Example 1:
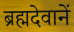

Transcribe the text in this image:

ब्रह्मदेवानें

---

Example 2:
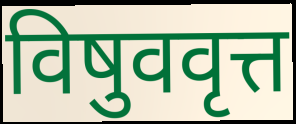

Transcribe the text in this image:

विषुववृत्त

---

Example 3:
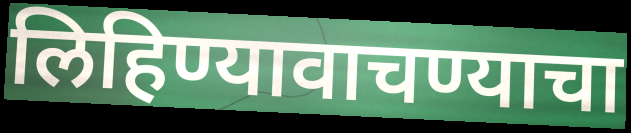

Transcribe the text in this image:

लिहिण्यावाचण्याचा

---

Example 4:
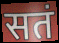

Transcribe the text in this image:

सतं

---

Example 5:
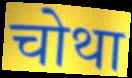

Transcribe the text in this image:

चोथा